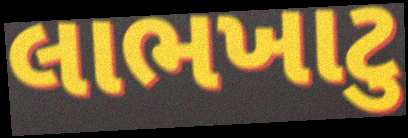
લાભખાટુ